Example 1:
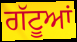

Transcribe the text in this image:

ਗੱਟੂਆਂ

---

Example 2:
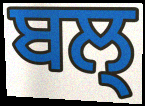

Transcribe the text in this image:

ਬਲ੍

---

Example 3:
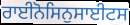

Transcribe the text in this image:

ਰਾਈਨੋਸਿਨੁਸਾਈਟਸ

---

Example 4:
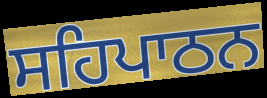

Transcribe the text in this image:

ਸਹਿਪਾਠਨ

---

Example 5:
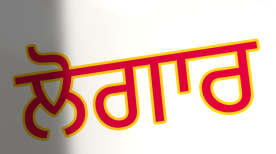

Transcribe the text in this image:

ਲੋਗਾਰ